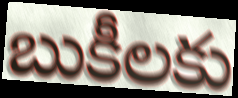
బుకీలకు